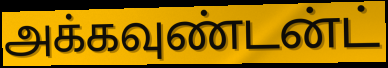
அக்கவுண்டன்ட்